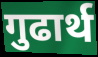
गुढार्थ